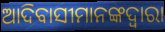
ଆଦିବାସୀମାନଙ୍କଦ୍ୱାରା